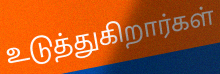
உடுத்துகிறார்கள்